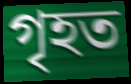
গৃহত